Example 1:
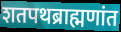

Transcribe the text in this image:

शतपथब्राह्मणांत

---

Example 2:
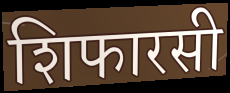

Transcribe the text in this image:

शिफारसी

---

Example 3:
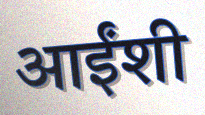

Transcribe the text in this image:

आईंशी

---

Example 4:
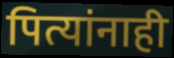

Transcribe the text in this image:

पित्यांनाही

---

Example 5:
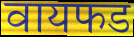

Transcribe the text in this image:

वायफड